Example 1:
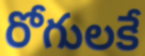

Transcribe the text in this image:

రోగులకే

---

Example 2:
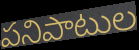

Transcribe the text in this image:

పనిపాటుల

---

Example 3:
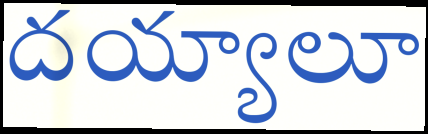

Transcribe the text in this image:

దయ్యాలూ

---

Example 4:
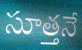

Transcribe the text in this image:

సూత్తనే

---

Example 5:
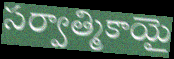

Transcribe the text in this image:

సర్వాత్మికాయై